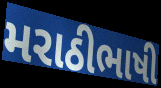
મરાઠીભાષી